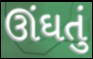
ઊંઘતું